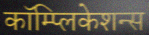
कॉम्प्लिकेशन्स